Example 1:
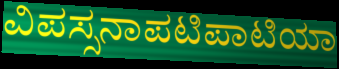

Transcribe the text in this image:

ವಿಪಸ್ಸನಾಪಟಿಪಾಟಿಯಾ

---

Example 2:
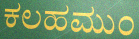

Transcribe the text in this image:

ಕಲಹಮುಂ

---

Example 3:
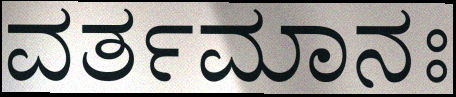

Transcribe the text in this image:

ವರ್ತಮಾನಃ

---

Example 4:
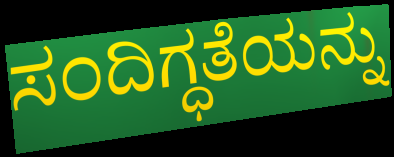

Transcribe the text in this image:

ಸಂದಿಗ್ಧತೆಯನ್ನು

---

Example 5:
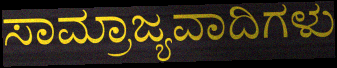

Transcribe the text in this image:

ಸಾಮ್ರಾಜ್ಯವಾದಿಗಳು